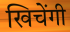
खिचेंगी